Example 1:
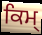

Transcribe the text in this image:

ਕਿਮ੍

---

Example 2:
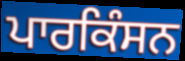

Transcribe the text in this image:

ਪਾਰਕਿੰਸਨ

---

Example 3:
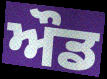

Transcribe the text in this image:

ਔਡ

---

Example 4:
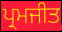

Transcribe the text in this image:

ਪ੍ਰਮਜੀਤ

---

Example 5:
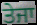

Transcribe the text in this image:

ਤੇਜਾ